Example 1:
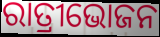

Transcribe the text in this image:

ରାତ୍ରୀଭୋଜନ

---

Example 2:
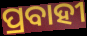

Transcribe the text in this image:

ପ୍ରବାହୀ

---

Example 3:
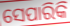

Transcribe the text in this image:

ସେପାରିକି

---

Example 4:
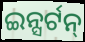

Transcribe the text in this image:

ଇନ୍ସର୍ଟନ୍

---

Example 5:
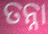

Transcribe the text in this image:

ତନ୍ନା